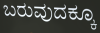
ಬರುವುದಕ್ಕೂ